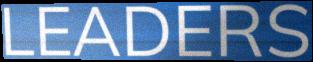
LEADERS